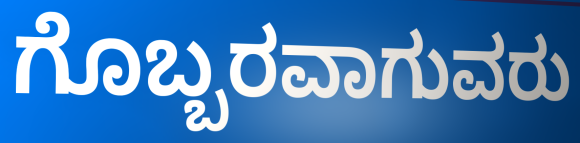
ಗೊಬ್ಬರವಾಗುವರು